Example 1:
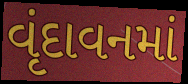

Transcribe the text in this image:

વૃંદાવનમાં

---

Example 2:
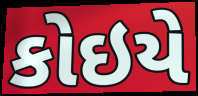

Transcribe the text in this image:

કોઇયે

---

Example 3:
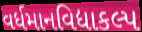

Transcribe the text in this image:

વર્ધમાનવિદ્યાકલ્પ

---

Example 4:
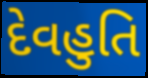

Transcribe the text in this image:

દેવહુતિ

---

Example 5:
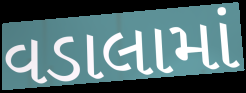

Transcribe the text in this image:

વડાલામાં